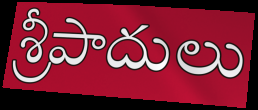
శ్రీపాదులు